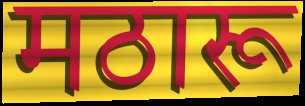
मठारू